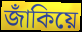
জাঁকিয়ে